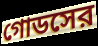
গোডসের